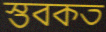
স্তবকত